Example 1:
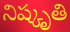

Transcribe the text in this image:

నిష్కృతి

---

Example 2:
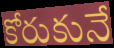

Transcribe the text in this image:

కోరుకునే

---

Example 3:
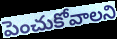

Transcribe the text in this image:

పెంచుకోవాలని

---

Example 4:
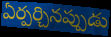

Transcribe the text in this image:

ఏర్పర్చినప్పుడు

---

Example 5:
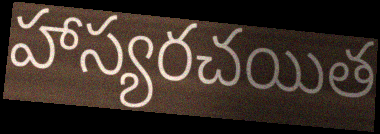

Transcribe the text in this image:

హాస్యరచయిత